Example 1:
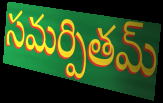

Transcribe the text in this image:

సమర్పితమ్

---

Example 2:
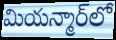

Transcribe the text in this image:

మియన్మార్‌లో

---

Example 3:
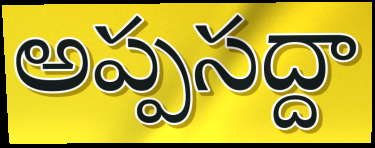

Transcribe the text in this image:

అప్పసద్దా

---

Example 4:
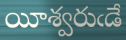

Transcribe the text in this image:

యీశ్వరుఁడే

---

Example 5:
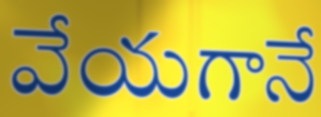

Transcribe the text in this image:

వేయగానే